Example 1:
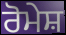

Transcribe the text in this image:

ਰੋਮੇਸ਼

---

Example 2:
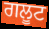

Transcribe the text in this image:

ਗਲੂਟ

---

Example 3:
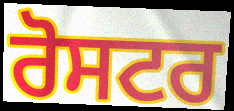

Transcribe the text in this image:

ਰੋਸਟਰ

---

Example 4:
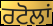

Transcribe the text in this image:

ਰਟੋਲਾਂ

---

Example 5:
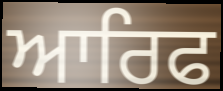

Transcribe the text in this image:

ਆਰਿਫ